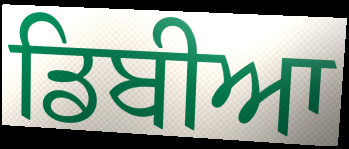
ਡਿਬੀਆ